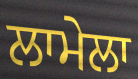
ਲਾਮੇਲਾ